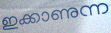
ഇക്കാണുന്ന